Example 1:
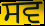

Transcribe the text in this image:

ਸਵ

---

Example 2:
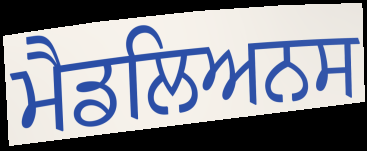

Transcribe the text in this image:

ਮੈਡਲਿਅਨਸ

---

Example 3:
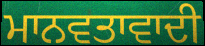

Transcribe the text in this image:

ਮਾਨਵਤਾਵਾਦੀ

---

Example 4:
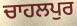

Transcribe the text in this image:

ਚਾਹਲਪੁਰ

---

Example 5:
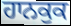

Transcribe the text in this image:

ਹਾਨਕੁਕ